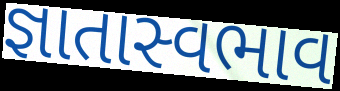
જ્ઞાતાસ્વભાવ